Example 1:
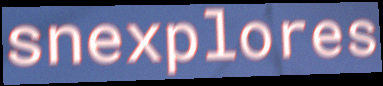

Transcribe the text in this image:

snexplores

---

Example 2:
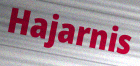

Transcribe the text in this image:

Hajarnis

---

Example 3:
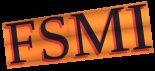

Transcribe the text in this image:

FSMI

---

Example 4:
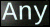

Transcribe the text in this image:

Any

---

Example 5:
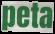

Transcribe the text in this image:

peta